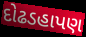
દોઢડહાપણ